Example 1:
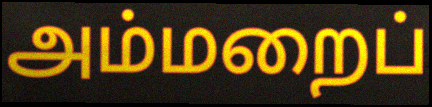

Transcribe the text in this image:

அம்மறைப்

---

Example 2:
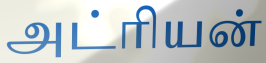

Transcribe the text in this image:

அட்ரியன்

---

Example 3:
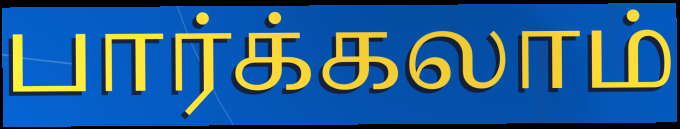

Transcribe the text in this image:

பார்க்கலாம்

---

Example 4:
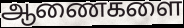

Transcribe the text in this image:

ஆணைகளை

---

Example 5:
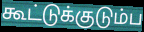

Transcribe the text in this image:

கூட்டுக்குடும்ப